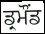
ਡ੍ਰਮੌਂਡ